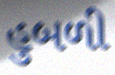
હુબળી